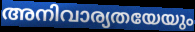
അനിവാര്യതയേയും